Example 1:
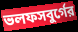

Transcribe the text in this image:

ভলফসবুর্গের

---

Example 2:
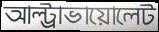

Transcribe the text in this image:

আল্ট্রাভায়োলেট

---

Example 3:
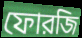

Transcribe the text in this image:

ফোরজি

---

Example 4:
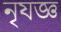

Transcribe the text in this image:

নৃযজ্ঞ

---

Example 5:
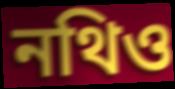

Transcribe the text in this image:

নথিও